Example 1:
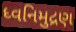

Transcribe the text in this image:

ધ્વનિમુદ્રણ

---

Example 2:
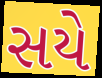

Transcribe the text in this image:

સયે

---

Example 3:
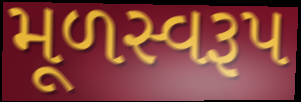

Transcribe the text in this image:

મૂળસ્વરૂપ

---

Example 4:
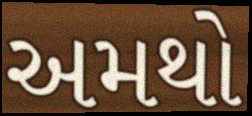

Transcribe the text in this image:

અમથો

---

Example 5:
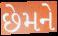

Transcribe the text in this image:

છેમને